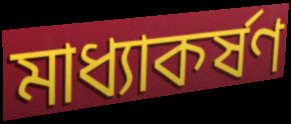
মাধ্যাকর্ষণ